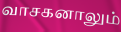
வாசகனாலும்